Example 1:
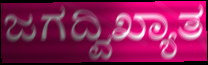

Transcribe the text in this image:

ಜಗದ್ವಿಖ್ಯಾತ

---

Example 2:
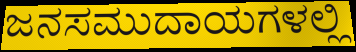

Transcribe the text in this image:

ಜನಸಮುದಾಯಗಳಲ್ಲಿ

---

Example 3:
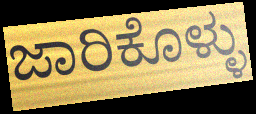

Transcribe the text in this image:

ಜಾರಿಕೊಳ್ಳು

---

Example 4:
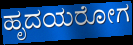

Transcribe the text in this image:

ಹೃದಯರೋಗ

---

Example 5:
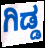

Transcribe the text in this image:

ಗಿಡ್ಡ